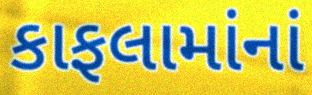
કાફલામાંનાં